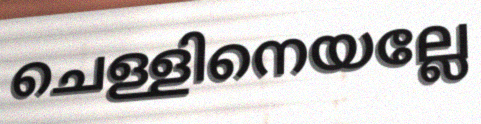
ചെള്ളിനെയല്ലേ